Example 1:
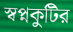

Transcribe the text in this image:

স্বপ্নকুটির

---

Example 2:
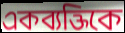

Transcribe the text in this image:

একব্যক্তিকে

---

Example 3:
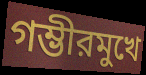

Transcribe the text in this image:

গম্ভীরমুখে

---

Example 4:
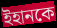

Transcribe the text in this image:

ইহানকে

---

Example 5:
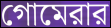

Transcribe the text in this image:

গোমেরার